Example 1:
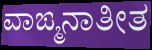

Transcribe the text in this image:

ವಾಙ್ಮನಾತೀತ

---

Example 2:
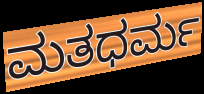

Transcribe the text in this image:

ಮತಧರ್ಮ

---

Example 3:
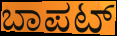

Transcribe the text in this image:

ಬಾಪಟ್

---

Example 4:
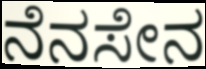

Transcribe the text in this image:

ನೆನಸೇನ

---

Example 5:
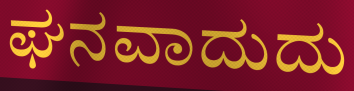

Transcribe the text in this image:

ಘನವಾದುದು